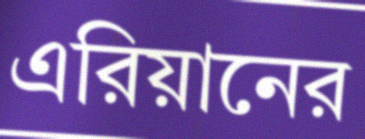
এরিয়ানের